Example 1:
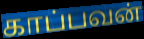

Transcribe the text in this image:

காப்பவன்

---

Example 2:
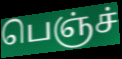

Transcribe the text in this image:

பெஞ்ச்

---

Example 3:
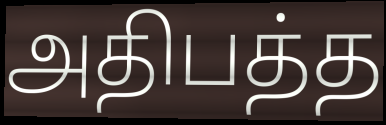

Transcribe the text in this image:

அதிபத்த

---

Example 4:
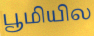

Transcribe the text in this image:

பூமியில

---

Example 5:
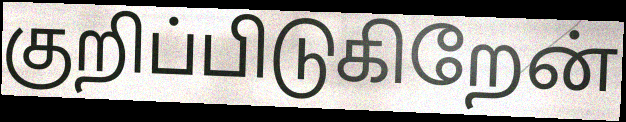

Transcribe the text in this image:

குறிப்பிடுகிறேன்